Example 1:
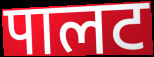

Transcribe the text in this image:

पालट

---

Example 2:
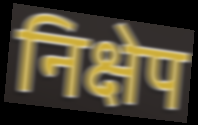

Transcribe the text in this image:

निक्षेप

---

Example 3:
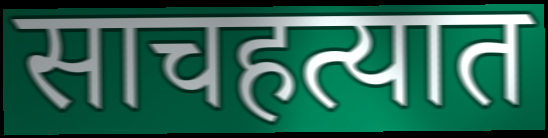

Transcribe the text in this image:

साचहत्यात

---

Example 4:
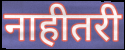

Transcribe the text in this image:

नाहीतरी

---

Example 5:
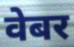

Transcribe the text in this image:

वेबर